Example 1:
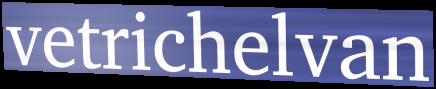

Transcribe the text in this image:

vetrichelvan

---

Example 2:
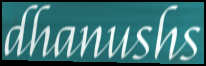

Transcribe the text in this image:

dhanushs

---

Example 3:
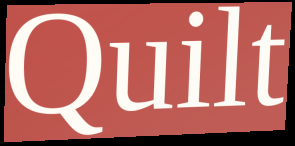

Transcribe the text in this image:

Quilt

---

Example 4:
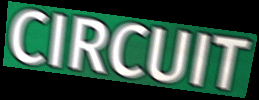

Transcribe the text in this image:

CIRCUIT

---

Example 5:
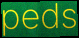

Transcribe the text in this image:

peds